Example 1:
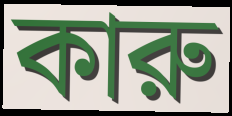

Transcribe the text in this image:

কারু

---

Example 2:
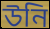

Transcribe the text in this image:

উনি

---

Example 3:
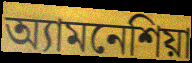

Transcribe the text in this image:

অ্যামনেশিয়া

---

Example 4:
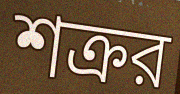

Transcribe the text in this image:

শক্রর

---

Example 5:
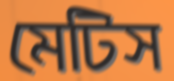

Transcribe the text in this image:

মেটিস